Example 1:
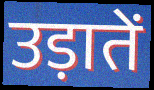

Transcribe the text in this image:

उड़ातें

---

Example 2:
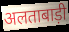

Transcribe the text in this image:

अलताबाड़ी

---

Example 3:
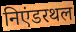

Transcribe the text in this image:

निएंडरथल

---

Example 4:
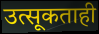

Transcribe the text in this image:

उत्सूकताही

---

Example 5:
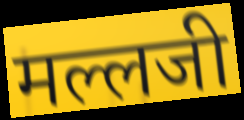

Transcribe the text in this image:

मल्लजी